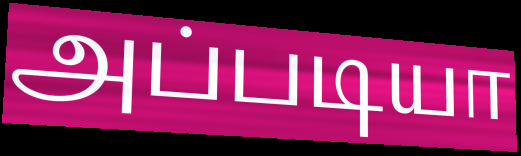
அப்படியா